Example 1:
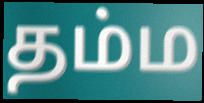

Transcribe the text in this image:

தம்ம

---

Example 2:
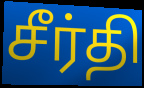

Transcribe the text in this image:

சீர்தி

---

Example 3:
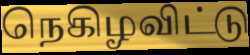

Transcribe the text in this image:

நெகிழவிட்டு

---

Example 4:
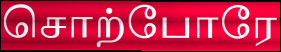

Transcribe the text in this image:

சொற்போரே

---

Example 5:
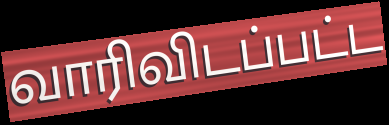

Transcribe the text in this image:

வாரிவிடப்பட்ட